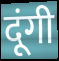
दूंगी